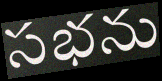
సభను